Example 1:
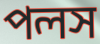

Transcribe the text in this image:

পলস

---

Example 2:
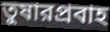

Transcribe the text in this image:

তুষারপ্রবাহ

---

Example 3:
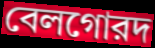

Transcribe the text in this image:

বেলগোরদ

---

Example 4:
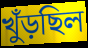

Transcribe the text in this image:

খুঁড়ছিল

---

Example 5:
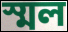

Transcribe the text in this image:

স্মল